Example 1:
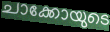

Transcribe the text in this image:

ചാക്കോയുടെ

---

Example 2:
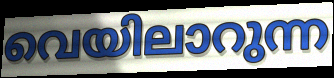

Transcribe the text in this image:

വെയിലാറുന്ന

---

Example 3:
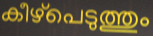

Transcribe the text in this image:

കീഴ്പെടുത്തും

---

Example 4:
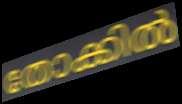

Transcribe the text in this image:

തോക്കിൽ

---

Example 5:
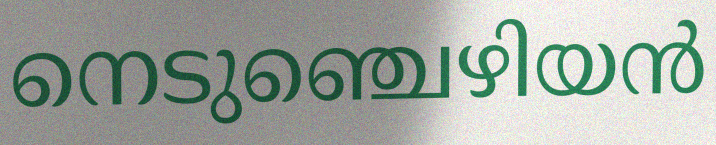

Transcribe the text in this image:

നെടുഞ്ചെഴിയൻ